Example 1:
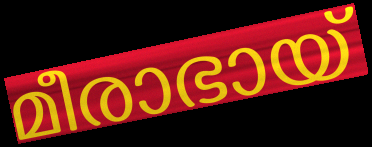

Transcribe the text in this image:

മീരാഭായ്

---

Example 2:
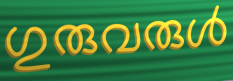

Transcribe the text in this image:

ഗുരുവരുൾ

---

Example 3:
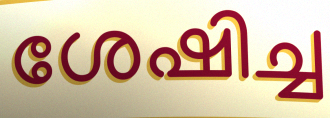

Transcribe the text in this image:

ശേഷിച്ച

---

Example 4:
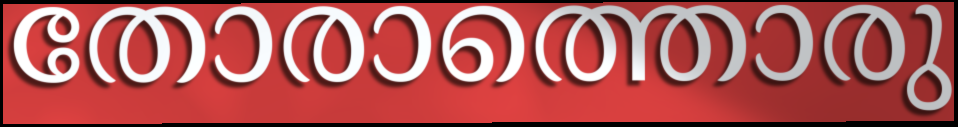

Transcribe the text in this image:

തോരാത്തൊരു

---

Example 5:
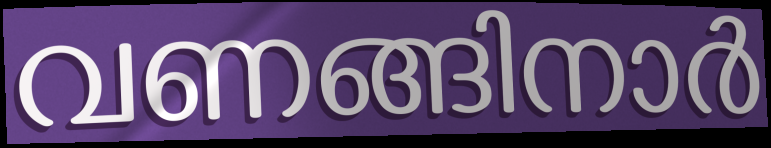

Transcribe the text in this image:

വണങ്ങിനാർ